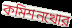
কমিশনখোর